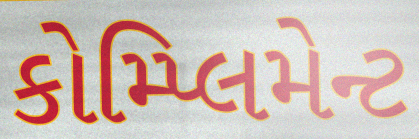
કોમ્પ્લિમેન્ટ